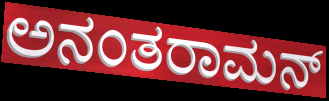
ಅನಂತರಾಮನ್